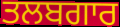
ਤਲਬਗਾਰ